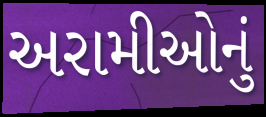
અરામીઓનું